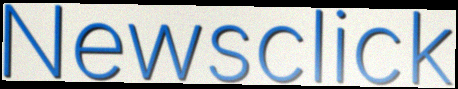
Newsclick